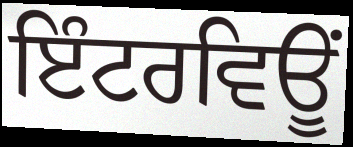
ਇੰਟਰਵਿਊਂ